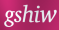
gshiw